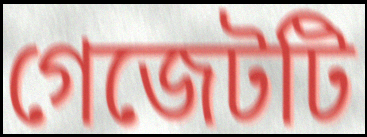
গেজেটটি